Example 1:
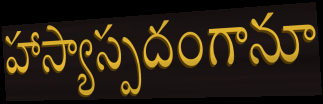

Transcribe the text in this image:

హాస్యాస్పదంగానూ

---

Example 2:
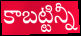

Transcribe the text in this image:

కాబట్టిన్నీ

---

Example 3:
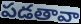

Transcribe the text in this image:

పడతావా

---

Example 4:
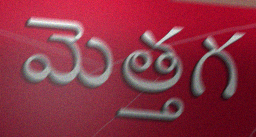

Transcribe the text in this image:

మెత్తగ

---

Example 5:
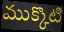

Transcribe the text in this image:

ముక్కొటి